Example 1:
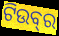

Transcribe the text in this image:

ଟିଉବ୍‍ର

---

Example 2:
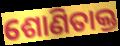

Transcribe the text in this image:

ଶୋଣିତାକ୍ତ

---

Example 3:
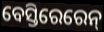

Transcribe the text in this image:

ବେସ୍ତିରେରେନ୍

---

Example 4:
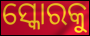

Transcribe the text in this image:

ସ୍କୋରକୁ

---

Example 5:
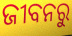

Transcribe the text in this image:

ଜୀବନରୁ